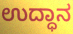
ಉದ್ಧಾನ